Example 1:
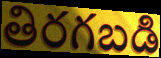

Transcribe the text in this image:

తిరగబడి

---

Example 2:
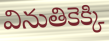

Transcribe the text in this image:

వినుతికెక్కి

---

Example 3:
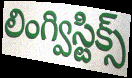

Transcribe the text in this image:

లింగ్విస్టిక్స్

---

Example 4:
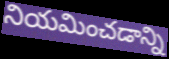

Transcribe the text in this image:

నియమించడాన్ని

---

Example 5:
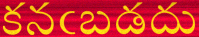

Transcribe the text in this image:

కనఁబడదు